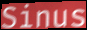
Sinus